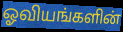
ஓவியங்களின்